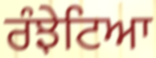
ਰੰਝੇਟਿਆ